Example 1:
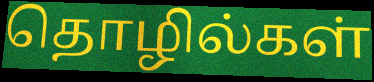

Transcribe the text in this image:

தொழில்கள்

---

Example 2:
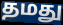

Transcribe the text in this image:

தமது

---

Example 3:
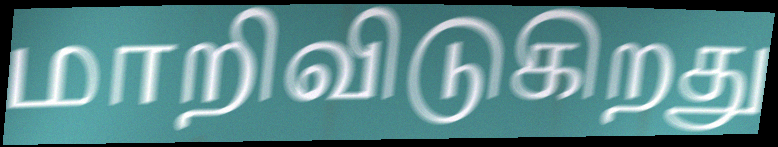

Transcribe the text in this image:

மாறிவிடுகிறது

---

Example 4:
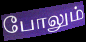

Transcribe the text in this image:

போலும்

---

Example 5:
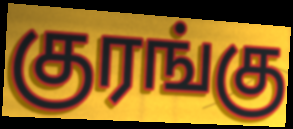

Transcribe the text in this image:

குரங்கு